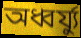
অধ্বর্য্যু